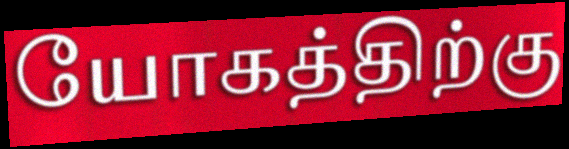
யோகத்திற்கு